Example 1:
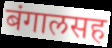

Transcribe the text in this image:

बंगालसह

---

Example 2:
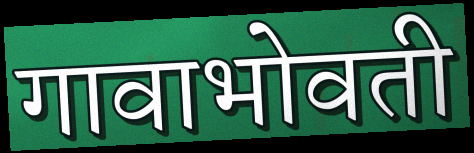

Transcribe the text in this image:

गावाभोवती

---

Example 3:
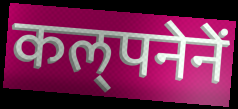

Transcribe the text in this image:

कल्पनेनें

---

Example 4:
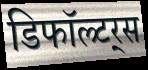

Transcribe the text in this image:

डिफॉल्टर्स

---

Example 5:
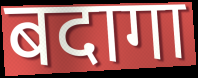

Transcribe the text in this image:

बदागा